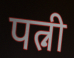
पत्नी